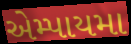
એમ્પાયમા